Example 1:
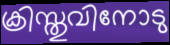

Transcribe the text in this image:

ക്രിസ്തുവിനോടു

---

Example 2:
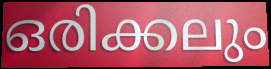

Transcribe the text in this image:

ഒരിക്കലും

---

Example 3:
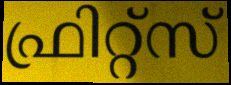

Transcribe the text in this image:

ഫ്രിറ്റ്സ്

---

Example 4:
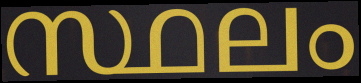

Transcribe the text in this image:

സ്ഥലം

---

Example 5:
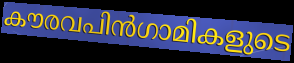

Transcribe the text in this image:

കൗരവപിൻഗാമികളുടെ